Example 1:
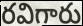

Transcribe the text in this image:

రవిగారు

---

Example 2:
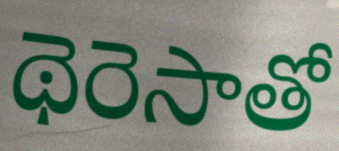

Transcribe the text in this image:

థెరెసాతో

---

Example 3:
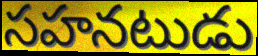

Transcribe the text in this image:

సహనటుడు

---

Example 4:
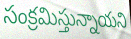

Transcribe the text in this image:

సంక్రమిస్తున్నాయని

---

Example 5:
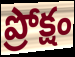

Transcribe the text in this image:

ప్రోక్షం